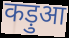
कड़ुआ